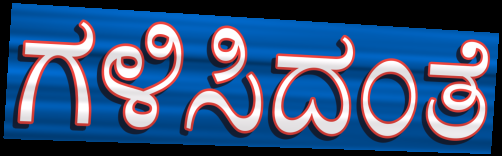
ಗಳಿಸಿದಂತೆ